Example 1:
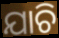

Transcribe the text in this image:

ଯାଚି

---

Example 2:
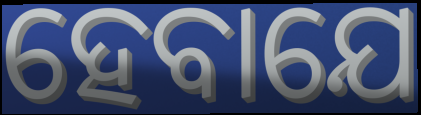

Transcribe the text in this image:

ହେବାଯେ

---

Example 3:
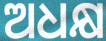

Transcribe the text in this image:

ଅଧକ୍ଷ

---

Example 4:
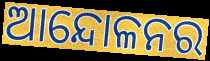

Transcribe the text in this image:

ଆନ୍ଦୋଳନର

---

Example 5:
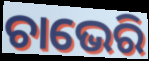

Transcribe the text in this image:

ଚାଭେରି